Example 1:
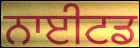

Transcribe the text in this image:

ਨਾਈਟਡ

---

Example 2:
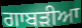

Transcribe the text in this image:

ਗਾਬੜੀਆ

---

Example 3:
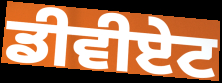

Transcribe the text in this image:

ਡੀਵੀਏਟ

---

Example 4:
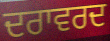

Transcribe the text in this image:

ਦਰਾਵਰਦ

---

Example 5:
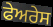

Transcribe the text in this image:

ਫੇਅਰੇਸ